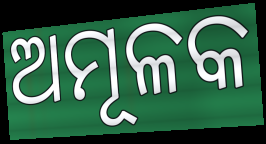
ଅମୂଳକ